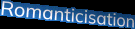
Romanticisation